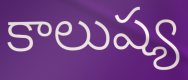
కాలుష్య